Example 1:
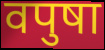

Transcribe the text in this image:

वपुषा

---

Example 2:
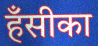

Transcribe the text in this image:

हँसीका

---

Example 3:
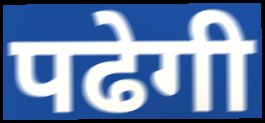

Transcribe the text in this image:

पढेगी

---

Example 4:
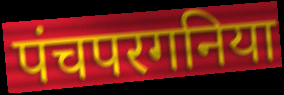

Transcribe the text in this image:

पंचपरगनिया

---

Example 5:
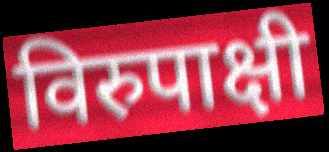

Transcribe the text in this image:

विरुपाक्षी